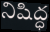
నిషిద్ధ